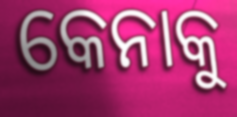
କେନାକୁ